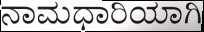
ನಾಮಧಾರಿಯಾಗಿ